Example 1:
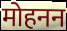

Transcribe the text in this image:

मोहनन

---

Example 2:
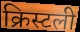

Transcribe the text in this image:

क्रिस्टली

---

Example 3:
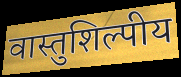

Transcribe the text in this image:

वास्तुशिल्पीय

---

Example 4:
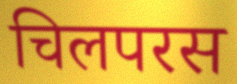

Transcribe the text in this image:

चिलपरस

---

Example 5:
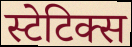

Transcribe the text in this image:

स्टेटिक्स